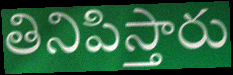
తినిపిస్తారు